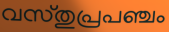
വസ്തുപ്രപഞ്ചം